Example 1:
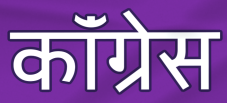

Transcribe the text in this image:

कॉंग्रेस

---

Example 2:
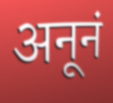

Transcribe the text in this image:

अनूनं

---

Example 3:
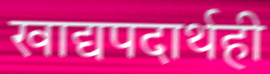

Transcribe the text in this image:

खाद्यपदार्थही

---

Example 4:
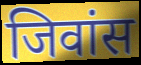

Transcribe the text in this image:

जिवांस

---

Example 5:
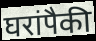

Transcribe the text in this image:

घरांपैकी